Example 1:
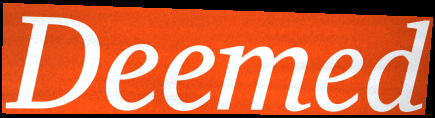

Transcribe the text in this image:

Deemed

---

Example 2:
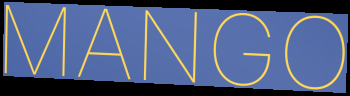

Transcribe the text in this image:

MANGO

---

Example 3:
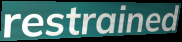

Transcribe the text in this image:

restrained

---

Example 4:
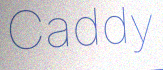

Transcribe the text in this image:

Caddy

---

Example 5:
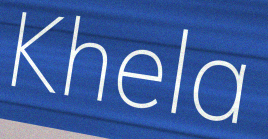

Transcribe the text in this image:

Khela